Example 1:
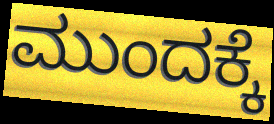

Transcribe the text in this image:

ಮುಂದಕ್ಕೆ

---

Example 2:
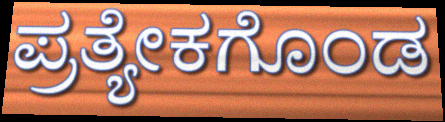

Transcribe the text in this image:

ಪ್ರತ್ಯೇಕಗೊಂಡ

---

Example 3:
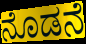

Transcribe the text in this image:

ನೊಡನೆ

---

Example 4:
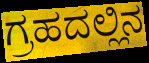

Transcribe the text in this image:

ಗ್ರಹದಲ್ಲಿನ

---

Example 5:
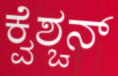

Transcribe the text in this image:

ಕ್ವೆಶ್ಚನ್